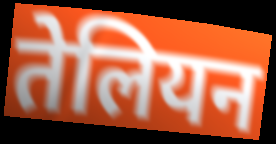
तेलियन